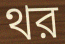
থর